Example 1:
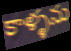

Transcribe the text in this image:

కాళ్ళను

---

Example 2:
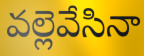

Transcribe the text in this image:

వల్లెవేసినా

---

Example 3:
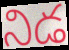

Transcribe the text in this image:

నిడ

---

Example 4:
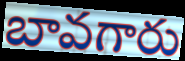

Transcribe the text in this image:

బావగారు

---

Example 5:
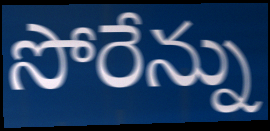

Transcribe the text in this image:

సోరేన్ను